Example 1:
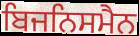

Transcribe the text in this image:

ਬਿਜਨਿਸਮੈਨ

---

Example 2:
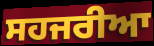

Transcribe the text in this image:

ਸਹਜਰੀਆ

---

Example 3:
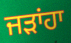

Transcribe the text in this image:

ਜੜਾਂਹਾ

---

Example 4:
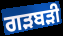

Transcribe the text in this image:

ਗੜਬੜੀ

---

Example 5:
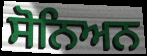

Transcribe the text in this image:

ਸੋਨਿਅਨ